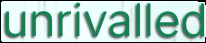
unrivalled